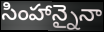
సింహాన్నైనా